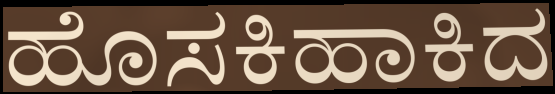
ಹೊಸಕಿಹಾಕಿದ